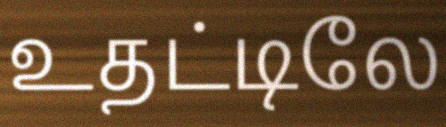
உதட்டிலே